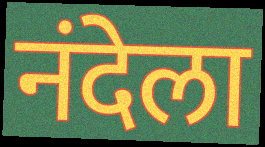
नंदेला